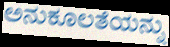
ಅನುಕೂಲತೆಯನ್ನು